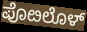
ಪೊೞಲೊಳ್